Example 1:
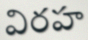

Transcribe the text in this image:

విరహ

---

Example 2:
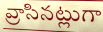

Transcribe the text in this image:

వ్రాసినట్లుగా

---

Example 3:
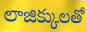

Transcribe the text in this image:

లాజిక్కులతో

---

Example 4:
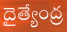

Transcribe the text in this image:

దైత్యేంద్ర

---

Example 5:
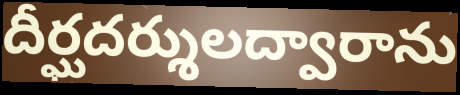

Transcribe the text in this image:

దీర్ఘదర్శులద్వారాను